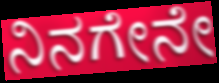
ನಿನಗೇನೇ